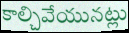
కాల్చివేయునట్లు